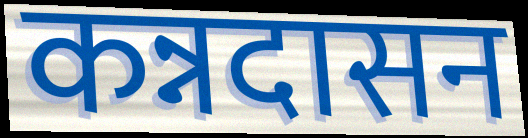
कन्नदासन